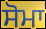
ਸੋਮਾ